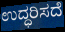
ಉದ್ಧರಿಸದೆ